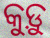
କୁଡ଼ୁ